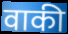
वाकी